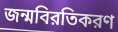
জন্মবিরতিকরণ